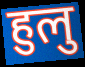
हुलु